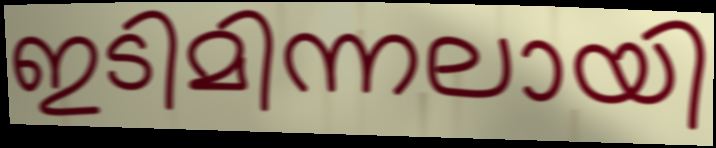
ഇടിമിന്നലായി